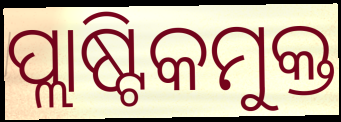
ପ୍ଲାଷ୍ଟିକମୁକ୍ତ